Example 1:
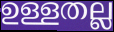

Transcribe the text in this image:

ഉള്ളതല്ല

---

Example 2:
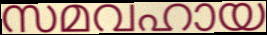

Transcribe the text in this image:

സമവഹായ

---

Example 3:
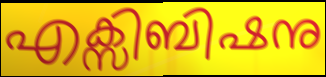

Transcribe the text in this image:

എക്സിബിഷനു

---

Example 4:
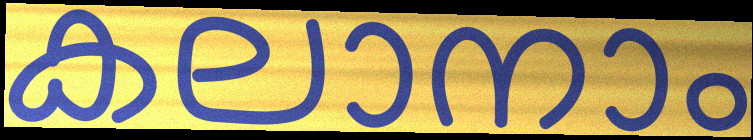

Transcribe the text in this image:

കലാനാം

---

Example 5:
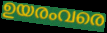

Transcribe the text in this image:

ഉയരംവരെ